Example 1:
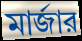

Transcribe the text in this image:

মার্জার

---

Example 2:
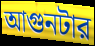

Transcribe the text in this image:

আগুনটার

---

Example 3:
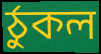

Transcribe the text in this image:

ঠুকল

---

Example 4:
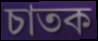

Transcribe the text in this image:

চাতক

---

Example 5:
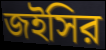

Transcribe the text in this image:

জইসির